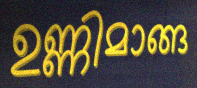
ഉണ്ണിമാങ്ങ